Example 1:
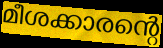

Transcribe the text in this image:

മീശക്കാരന്റെ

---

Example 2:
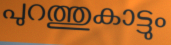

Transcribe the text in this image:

പുറത്തുകാട്ടും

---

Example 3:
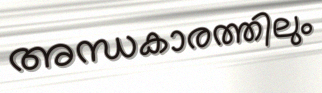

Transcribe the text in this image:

അന്ധകാരത്തിലും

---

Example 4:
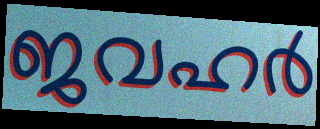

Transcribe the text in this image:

ജവഹർ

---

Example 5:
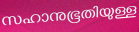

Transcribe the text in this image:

സഹാനുഭൂതിയുള്ള